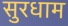
सुरधाम